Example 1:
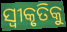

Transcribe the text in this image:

ସ୍ବୀକୃତିକୁ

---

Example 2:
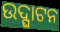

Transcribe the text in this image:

ଉଦ୍ଘାଟନ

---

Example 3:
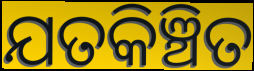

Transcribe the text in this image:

ଯତକିଞ୍ଚିତ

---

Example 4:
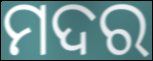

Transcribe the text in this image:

ମଦର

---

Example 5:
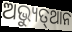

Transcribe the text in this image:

ଅଭ୍ୟୁତ୍‌ଥାନ